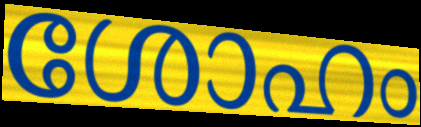
ശോഹം